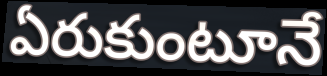
ఏరుకుంటూనే